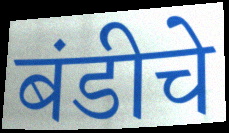
बंडीचे